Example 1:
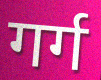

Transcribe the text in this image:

गर्ग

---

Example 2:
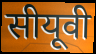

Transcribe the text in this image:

सीयूवी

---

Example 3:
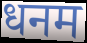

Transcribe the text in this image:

धनम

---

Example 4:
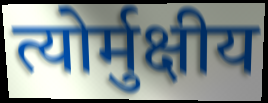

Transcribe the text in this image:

त्योर्मुक्षीय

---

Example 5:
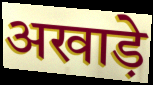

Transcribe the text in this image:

अखाड़े